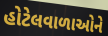
હોટેલવાળાઓને